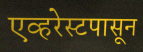
एव्हरेस्टपासून